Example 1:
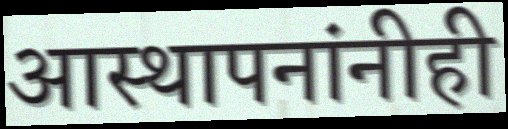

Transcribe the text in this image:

आस्थापनांनीही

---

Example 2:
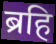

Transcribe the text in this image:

ब्रहि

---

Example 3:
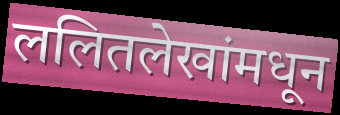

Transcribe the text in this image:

ललितलेखांमधून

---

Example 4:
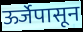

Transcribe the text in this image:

ऊर्जेपासून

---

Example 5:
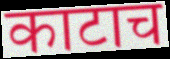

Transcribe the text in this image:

काटाच